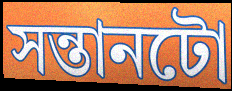
সন্তানটো